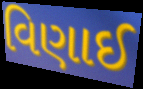
વિણાઈ